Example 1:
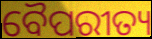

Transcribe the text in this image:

ବୈପରୀତ୍ୟ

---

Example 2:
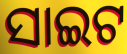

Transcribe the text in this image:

ସାଇଟ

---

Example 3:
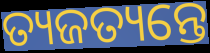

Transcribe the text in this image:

ତ୍ୟଜତ୍ୟନ୍ତେ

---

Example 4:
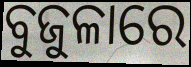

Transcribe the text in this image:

ବୁଜୁଳାରେ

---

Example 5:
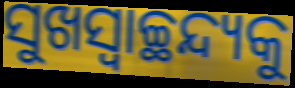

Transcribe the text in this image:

ସୁଖସ୍ଵାଚ୍ଛନ୍ଦ୍ୟକୁ